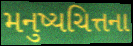
મનુષ્યચિત્તના